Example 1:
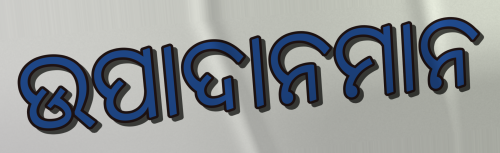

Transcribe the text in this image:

ଉପାଦାନମାନ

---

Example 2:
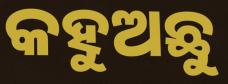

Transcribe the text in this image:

କହୁଅଛୁ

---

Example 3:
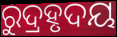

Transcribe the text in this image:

ରୁଦ୍ରହୃଦୟ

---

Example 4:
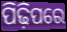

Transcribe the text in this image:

ପିଢ଼ିପରେ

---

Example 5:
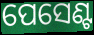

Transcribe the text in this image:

ପେସେଣ୍ଟ